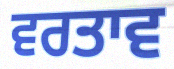
ਵਰਤਾਵ